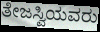
ತೇಜಸ್ವಿಯವರು